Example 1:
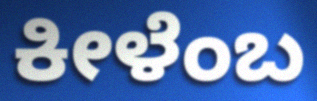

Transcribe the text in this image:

ಕೀಳೆಂಬ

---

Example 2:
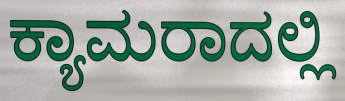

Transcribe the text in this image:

ಕ್ಯಾಮರಾದಲ್ಲಿ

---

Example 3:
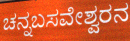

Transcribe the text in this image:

ಚನ್ನಬಸವೇಶ್ವರನ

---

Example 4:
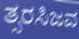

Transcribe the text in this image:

ತ್ಸರಸಿಜವ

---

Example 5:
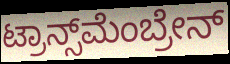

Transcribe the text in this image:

ಟ್ರಾನ್ಸ್‌ಮೆಂಬ್ರೇನ್